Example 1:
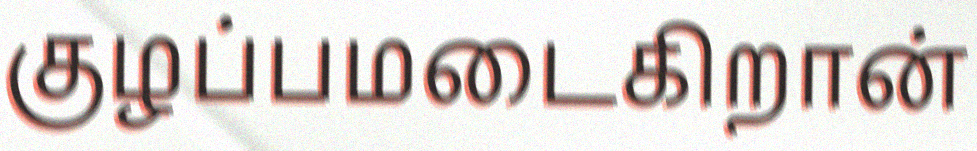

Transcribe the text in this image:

குழப்பமடைகிறான்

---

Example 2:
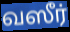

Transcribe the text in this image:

வஸீர்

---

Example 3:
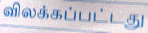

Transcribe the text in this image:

விலக்கப்பட்டது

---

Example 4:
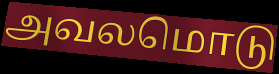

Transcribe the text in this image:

அவலமொடு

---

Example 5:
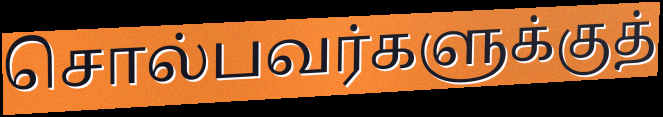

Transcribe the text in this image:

சொல்பவர்களுக்குத்